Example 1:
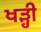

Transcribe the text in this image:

ਖੜ੍ਹੀ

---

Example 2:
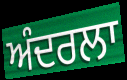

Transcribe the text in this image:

ਅੰਦਰਲਾ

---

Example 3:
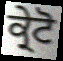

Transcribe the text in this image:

ਕ੍ਰੇਟੋ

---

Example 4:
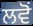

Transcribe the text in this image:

ਲਵੋਂ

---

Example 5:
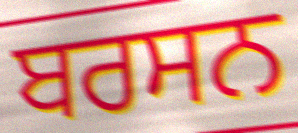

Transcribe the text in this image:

ਬਰਸਨ